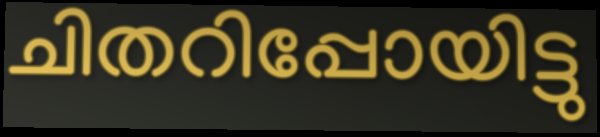
ചിതറിപ്പോയിട്ടു